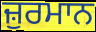
ਜ਼ੁਰਮਾਨ